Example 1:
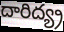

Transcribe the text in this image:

దారిద్య్ర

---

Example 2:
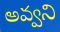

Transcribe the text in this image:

అవ్వని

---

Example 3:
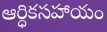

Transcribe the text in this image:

ఆర్ధికసహాయం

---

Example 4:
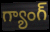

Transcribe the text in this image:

గ్యాంగ్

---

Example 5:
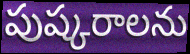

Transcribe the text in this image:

పుష్కరాలను